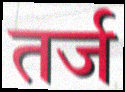
तर्ज